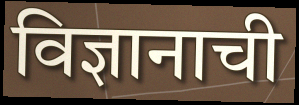
विज्ञानाची